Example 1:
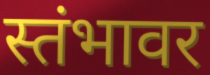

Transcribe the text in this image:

स्तंभावर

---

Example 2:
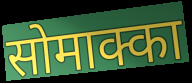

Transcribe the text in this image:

सोमाक्का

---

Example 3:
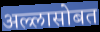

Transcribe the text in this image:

अल्लासोबत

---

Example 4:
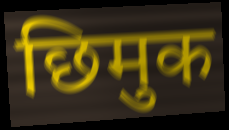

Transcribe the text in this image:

छिमुक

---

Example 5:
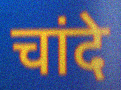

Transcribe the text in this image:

चांदे